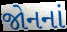
જોનનાં